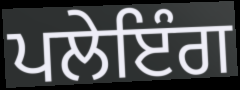
ਪਲੇਇੰਗ